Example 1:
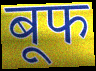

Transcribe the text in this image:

बूफ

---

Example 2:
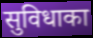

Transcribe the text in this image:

सुविधाका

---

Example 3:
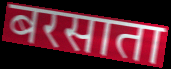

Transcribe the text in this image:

बरसाता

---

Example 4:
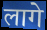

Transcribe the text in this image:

लागे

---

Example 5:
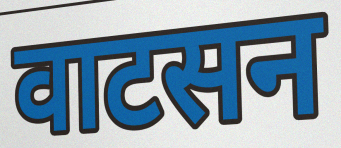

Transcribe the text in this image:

वाटसन